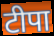
टीपा